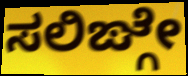
ಸಲಿಙ್ಗೇ